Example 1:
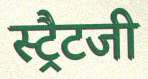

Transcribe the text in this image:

स्ट्रैटजी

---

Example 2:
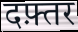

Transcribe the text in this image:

दफ़्तर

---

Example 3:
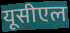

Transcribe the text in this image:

यूसीएल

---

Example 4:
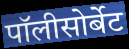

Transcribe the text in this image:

पॉलीसोर्बेट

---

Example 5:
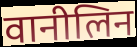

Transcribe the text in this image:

वानीलिन